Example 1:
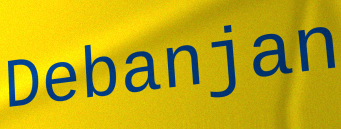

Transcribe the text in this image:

Debanjan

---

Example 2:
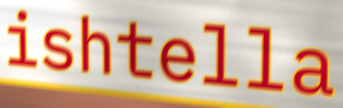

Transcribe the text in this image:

ishtella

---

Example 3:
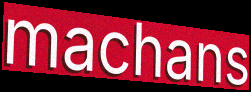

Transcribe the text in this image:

machans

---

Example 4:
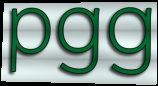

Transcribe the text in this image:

pgg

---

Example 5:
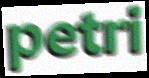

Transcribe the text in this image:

petri